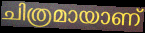
ചിത്രമായാണ്